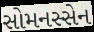
સોમનસ્સેન